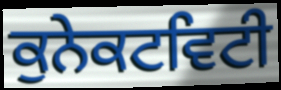
ਕੁਨੇਕਟਵਿਟੀ